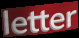
letter